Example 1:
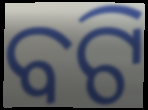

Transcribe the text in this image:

ବଟି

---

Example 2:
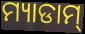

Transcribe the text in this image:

ମ୍ୟାଡାମ୍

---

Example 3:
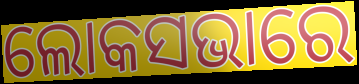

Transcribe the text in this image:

ଲୋକସଭାରେ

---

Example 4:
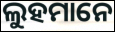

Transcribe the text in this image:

ଲୁହମାନେ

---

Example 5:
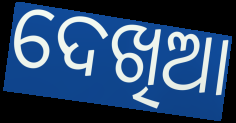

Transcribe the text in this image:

ଦେଖିଆ